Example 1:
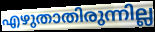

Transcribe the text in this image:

എഴുതാതിരുന്നില്ല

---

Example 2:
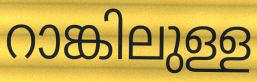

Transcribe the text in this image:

റാങ്കിലുള്ള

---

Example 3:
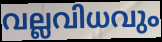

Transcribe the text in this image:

വല്ലവിധവും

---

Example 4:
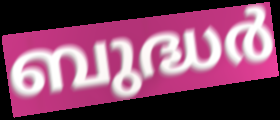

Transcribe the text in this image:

ബുദ്ധർ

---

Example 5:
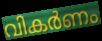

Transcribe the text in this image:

വികർണം